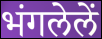
भंगलेलें